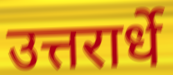
उत्तरार्धे